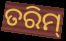
ତରିମ୍